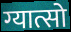
ग्यात्सो